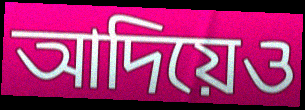
আদিয়েও